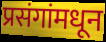
प्रसंगांमधून